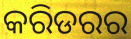
କରିଡରର